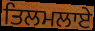
ਤਿਲਮਲਾਏ